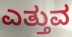
ಎತ್ತುವ